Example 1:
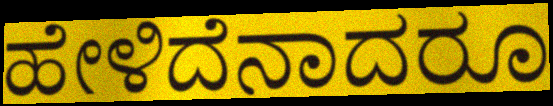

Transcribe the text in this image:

ಹೇಳಿದೆನಾದರೂ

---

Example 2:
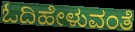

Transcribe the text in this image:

ಓದಿಹೇಳುವಂತೆ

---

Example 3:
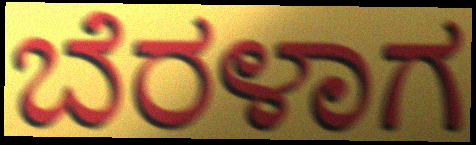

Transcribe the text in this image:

ಬೆರಳಾಗ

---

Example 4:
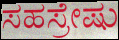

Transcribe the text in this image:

ಸಹಸ್ರೇಷು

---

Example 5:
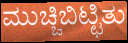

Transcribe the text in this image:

ಮುಚ್ಚಿಬಿಟ್ಟಿತು